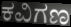
ಕವಿಗಣ